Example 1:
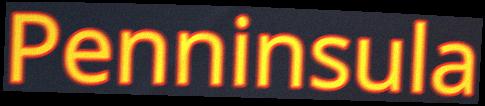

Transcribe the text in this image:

Penninsula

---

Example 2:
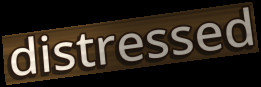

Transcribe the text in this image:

distressed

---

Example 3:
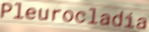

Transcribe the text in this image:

Pleurocladia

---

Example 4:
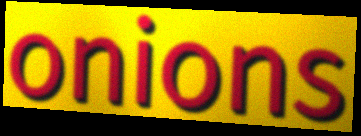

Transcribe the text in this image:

onions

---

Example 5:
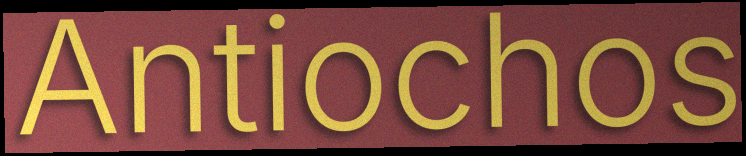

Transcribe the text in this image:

Antiochos